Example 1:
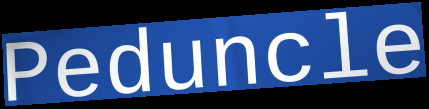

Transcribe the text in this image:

Peduncle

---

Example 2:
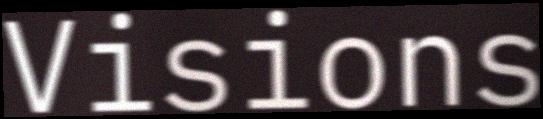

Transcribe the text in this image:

Visions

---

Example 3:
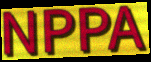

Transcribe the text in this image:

NPPA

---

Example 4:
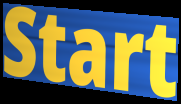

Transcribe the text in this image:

Start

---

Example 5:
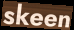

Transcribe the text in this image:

skeen